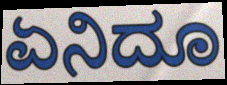
ಏನಿದೂ